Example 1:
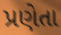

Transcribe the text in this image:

પ્રણેતા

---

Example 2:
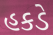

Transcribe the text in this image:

હકડે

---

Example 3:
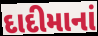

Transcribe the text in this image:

દાદીમાનાં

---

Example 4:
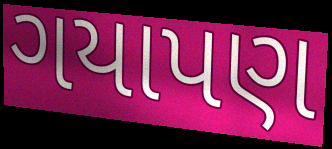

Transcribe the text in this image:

ગયાપણ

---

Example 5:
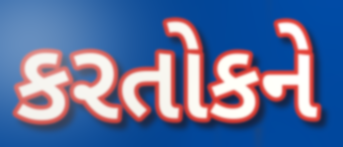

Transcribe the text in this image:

કરતોકને